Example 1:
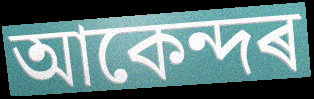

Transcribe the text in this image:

আকেন্দৰ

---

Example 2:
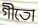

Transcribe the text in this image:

গীতো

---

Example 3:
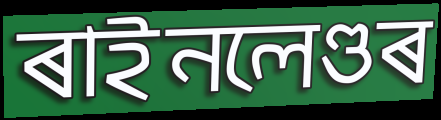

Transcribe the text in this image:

ৰাইনলেণ্ডৰ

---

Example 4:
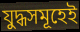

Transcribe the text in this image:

যুদ্ধসমূহেই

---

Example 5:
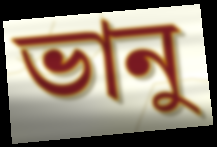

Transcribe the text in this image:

ভানু